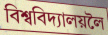
বিশ্ববিদ্যালয়লৈ